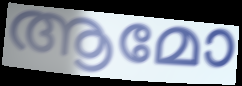
ആമോ